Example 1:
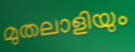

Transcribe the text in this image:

മുതലാളിയും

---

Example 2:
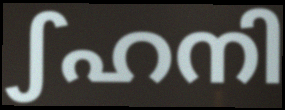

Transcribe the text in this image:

ഽഹനി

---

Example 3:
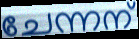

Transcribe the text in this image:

ചേന്നന്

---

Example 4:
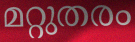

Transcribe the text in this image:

മറ്റുതരം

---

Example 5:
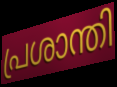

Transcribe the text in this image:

പ്രശാന്തി